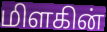
மிளகின்